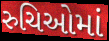
રુચિઓમાં